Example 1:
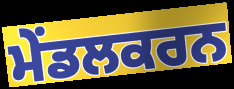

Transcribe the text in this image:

ਮੇਂਡਲਕਰਨ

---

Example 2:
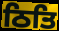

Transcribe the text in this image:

ਠਿਤਿ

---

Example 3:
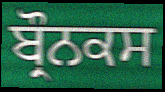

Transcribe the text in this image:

ਬ੍ਰੌਨਕਸ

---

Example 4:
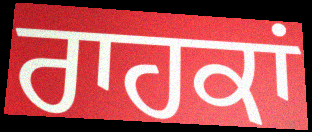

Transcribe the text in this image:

ਰਾਹਕਾਂ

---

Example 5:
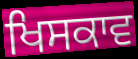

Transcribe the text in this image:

ਖਿਸਕਾਵ